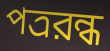
পত্ররন্ধ